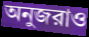
অনুজরাও